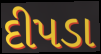
દીપડા